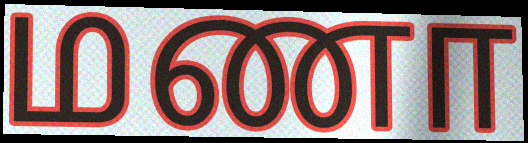
மணா